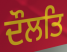
ਦੌਲਤਿ